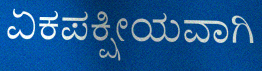
ಏಕಪಕ್ಷೀಯವಾಗಿ